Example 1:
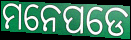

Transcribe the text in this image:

ମନେପଡେ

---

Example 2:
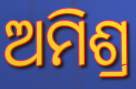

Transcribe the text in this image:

ଅମିଶ୍ର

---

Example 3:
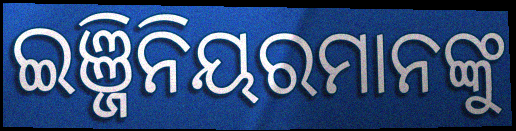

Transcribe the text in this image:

ଇଞ୍ଜିନିୟରମାନଙ୍କୁ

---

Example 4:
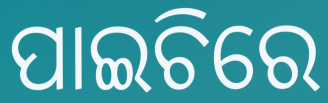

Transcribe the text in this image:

ପାଇଚିରେ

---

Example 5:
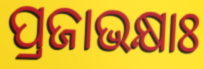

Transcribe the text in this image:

ପ୍ରଜାଭକ୍ଷାଃ